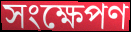
সংক্ষেপণ